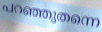
പറഞ്ഞുതന്നെ